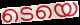
ടെയെ